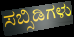
ಸಬ್ಸಿಡಿಗಳು